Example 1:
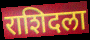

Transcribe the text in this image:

राशिदला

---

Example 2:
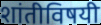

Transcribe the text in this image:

शांतीविषयी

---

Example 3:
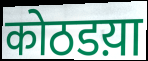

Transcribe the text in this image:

कोठडय़ा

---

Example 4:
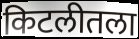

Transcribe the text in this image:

किटलीतला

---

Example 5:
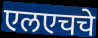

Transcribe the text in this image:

एलएचचे